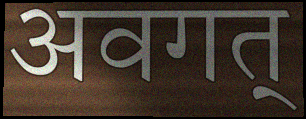
अवगत्